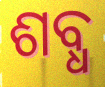
ଶବ୍ଧ